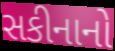
સકીનાનો